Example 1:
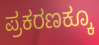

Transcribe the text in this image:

ಪ್ರಕರಣಕ್ಕೂ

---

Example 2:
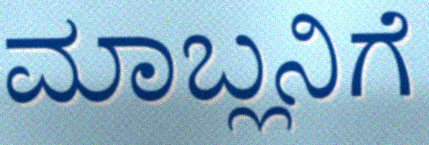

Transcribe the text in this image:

ಮಾಬ್ಲನಿಗೆ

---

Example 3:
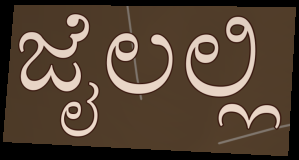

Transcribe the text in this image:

ಜೈಲಲ್ಲಿ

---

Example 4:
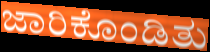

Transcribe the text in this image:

ಜಾರಿಕೊಂಡಿತು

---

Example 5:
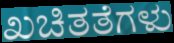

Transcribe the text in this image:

ಖಚಿತತೆಗಳು